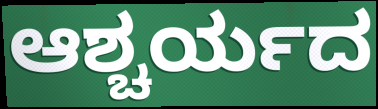
ಆಶ್ಚರ್ಯದ